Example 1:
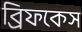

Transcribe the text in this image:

ব্রিফকেস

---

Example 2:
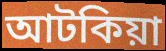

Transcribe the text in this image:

আটকিয়া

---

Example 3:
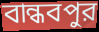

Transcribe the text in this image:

বান্ধবপুর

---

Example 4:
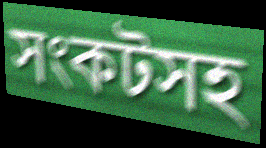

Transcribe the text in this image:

সংকটসহ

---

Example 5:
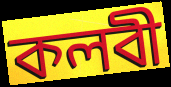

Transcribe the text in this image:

কলবী